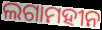
ଲଗାମହୀନ